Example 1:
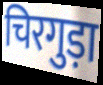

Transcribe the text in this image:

चिरगुड़ा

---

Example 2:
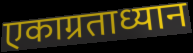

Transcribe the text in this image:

एकाग्रताध्यान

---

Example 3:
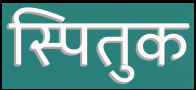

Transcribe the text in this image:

स्पितुक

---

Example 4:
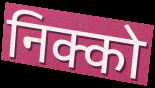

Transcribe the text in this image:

निक्को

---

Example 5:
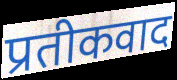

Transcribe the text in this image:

प्रतीकवाद